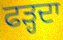
ਫੜ੍ਹਦਾ